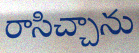
రాసిచ్చాను